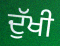
ਦੁੱਖੀ